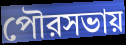
পৌরসভায়